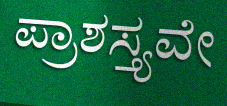
ಪ್ರಾಶಸ್ತ್ಯವೇ